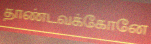
தாண்டவக்கோனே